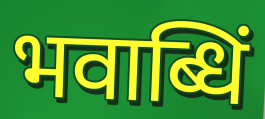
भवाब्धिं